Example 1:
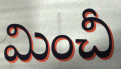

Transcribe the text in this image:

మించీ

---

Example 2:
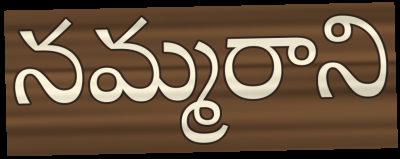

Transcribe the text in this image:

నమ్మరాని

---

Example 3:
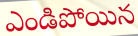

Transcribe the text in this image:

ఎండిపోయిన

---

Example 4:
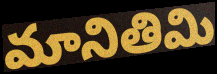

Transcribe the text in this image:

మానితిమి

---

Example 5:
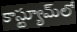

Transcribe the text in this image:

కాస్ట్యూమ్‌లో